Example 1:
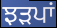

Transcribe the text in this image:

ਝੜਪਾਂ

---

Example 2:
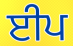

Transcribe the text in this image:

ਈਪ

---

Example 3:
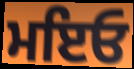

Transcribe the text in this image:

ਮਇਓ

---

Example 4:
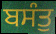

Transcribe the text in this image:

ਬਸੰਤੁ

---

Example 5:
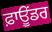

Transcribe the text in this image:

ਫ਼ਾਊਂਡਰ